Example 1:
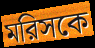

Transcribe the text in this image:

মরিসকে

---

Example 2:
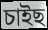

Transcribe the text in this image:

চাইছ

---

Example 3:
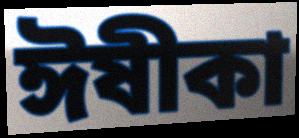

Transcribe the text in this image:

ঈষীকা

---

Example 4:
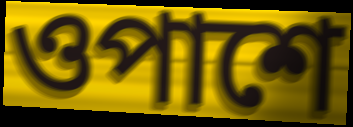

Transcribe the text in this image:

ওপাশে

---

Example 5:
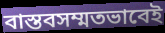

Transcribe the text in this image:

বাস্তবসম্মতভাবেই